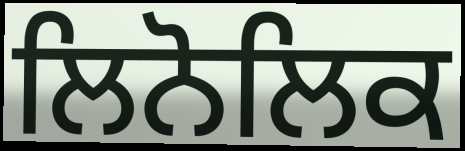
ਲਿਨੋਲਿਕ